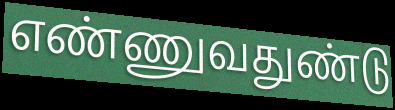
எண்ணுவதுண்டு